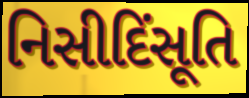
નિસીદિંસૂતિ